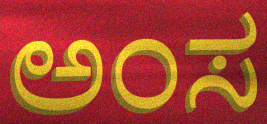
ಅಂಸ